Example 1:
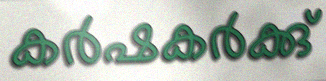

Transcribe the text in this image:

കർഷകർക്കു്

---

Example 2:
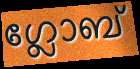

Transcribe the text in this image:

ഗ്ലോബ്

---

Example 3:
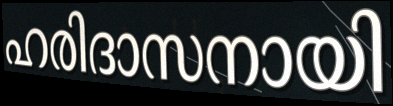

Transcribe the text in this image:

ഹരിദാസനായി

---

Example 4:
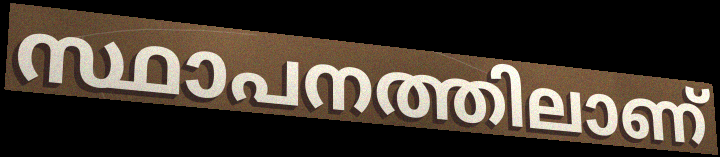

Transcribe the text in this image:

സ്ഥാപനത്തിലാണ്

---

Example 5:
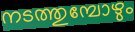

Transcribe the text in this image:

നടത്തുമ്പോഴും